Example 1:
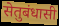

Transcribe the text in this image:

सेतुबंधासी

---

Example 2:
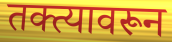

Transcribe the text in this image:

तक्त्यावरून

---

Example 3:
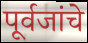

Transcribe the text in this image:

पूर्वजांचे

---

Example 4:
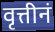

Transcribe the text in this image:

वृत्तीनं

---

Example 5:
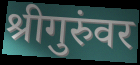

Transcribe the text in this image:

श्रीगुरुंवर